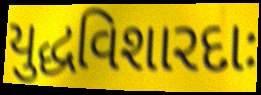
યુદ્ધવિશારદાઃ